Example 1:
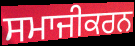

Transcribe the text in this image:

ਸਮਾਜੀਕਰਨ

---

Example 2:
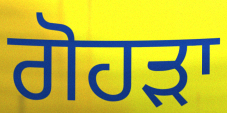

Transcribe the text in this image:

ਗੋਹੜਾ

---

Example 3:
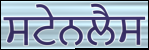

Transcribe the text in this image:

ਸਟੇਨਲੈਸ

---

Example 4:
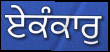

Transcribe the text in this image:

ਏਕੰਕਾਰੁ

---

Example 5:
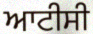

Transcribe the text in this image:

ਆਟੀਸੀ